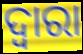
ଦ୍ଵାରା